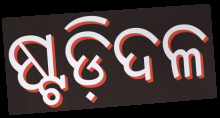
ଷ୍ଟଡ଼ିଦଳ